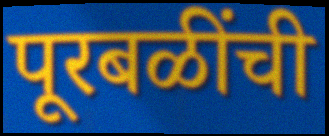
पूरबळींची